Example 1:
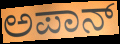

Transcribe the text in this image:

ಅಪಾನ್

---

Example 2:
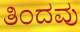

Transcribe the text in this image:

ತಿಂದವು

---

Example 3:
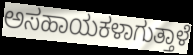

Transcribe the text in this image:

ಅಸಹಾಯಕಳಾಗುತ್ತಾಳೆ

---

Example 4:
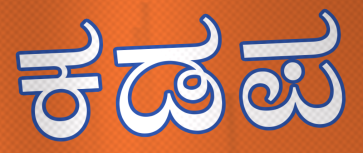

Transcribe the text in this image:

ಕಡಪ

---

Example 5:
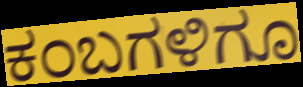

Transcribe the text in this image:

ಕಂಬಗಳಿಗೂ